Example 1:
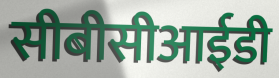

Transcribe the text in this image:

सीबीसीआईडी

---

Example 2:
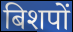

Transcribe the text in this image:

बिशपों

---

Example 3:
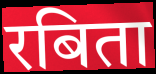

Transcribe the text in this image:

रबिता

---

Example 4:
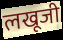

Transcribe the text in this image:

लखूजी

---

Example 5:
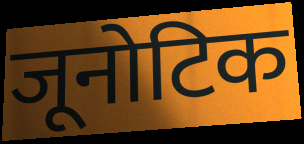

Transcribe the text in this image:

जूनोटिक